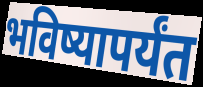
भविष्यापर्यंत